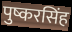
पुष्करसिंह